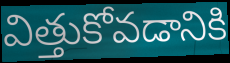
విత్తుకోవడానికి